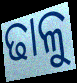
ଢାଳୁ